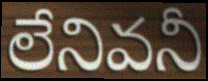
లేనివనీ